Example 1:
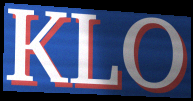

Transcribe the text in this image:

KLO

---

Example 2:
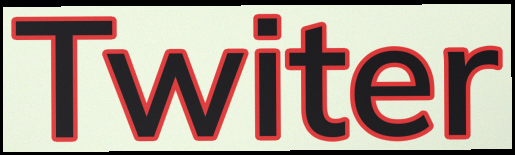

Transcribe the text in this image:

Twiter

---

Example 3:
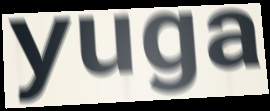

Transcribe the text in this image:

yuga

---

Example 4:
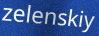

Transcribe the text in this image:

zelenskiy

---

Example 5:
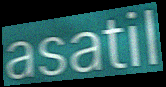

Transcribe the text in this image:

asatil